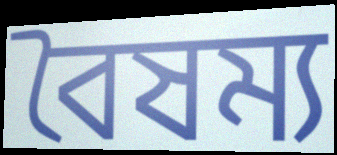
বৈষম্য